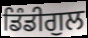
ਡਿੰਡੀਗੁਲ